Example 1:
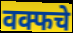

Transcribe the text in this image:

वक्फचे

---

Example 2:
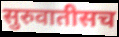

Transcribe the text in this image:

सुरुवातीसच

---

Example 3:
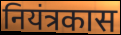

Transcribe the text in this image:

नियंत्रकास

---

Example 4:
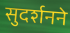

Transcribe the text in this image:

सुदर्शनने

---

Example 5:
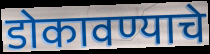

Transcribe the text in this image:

डोकावण्याचे